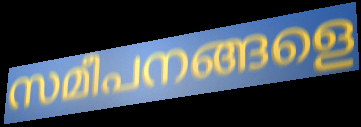
സമീപനങ്ങളെ